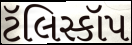
ટૅલિસ્કૉપ